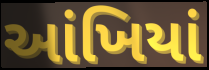
આંખિયાં